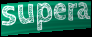
supera